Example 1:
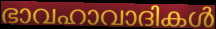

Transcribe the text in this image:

ഭാവഹാവാദികൾ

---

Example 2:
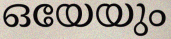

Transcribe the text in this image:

ഒയേയും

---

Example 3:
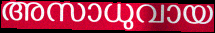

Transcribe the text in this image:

അസാധുവായ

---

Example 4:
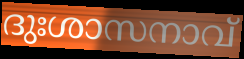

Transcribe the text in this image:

ദുഃശാസനാവ്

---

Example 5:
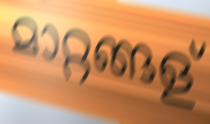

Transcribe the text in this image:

മാറ്റങ്ങള്